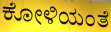
ಕೋಳಿಯಂತೆ